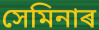
সেমিনাৰ